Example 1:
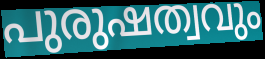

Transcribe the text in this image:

പുരുഷത്വവും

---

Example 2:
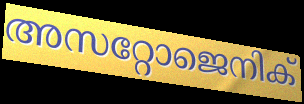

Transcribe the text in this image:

അസറ്റോജെനിക്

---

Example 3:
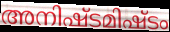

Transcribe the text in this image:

അനിഷ്ടമിഷ്ടം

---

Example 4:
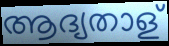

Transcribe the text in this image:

ആദ്യതാള്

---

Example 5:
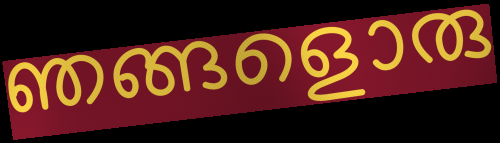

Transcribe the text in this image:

ഞങ്ങളൊരു